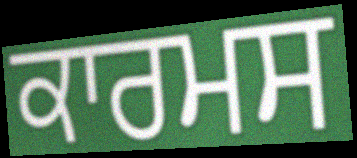
ਕਾਰਮਸ